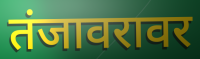
तंजावरावर